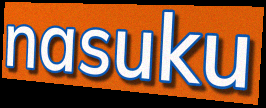
nasuku